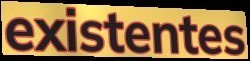
existentes